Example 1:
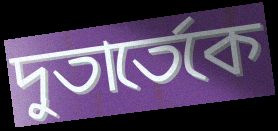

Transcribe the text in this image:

দুতার্তেকে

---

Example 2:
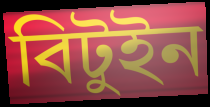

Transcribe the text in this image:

বিটুইন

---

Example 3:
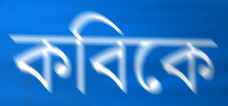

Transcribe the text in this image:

কবিকে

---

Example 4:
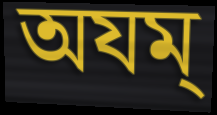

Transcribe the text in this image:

অযম্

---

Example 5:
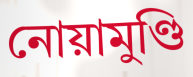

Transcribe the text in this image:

নোয়ামুণ্ডি